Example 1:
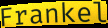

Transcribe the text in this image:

Frankel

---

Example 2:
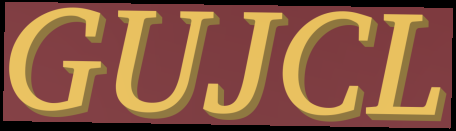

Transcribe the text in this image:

GUJCL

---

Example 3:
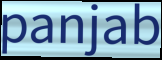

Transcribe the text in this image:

panjab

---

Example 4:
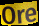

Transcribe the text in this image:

Ore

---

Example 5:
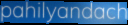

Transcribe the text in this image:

pahilyandach